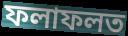
ফলাফলত